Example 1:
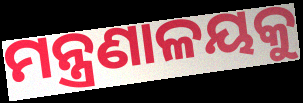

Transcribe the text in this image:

ମନ୍ତ୍ରଣାଳୟକୁ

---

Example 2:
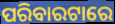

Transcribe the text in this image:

ପରିବାରଟାରେ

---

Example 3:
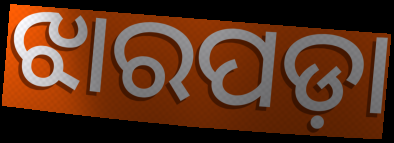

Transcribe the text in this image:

ଝାରପଡ଼ା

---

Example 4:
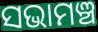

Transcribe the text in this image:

ସଭାମଞ୍ଚ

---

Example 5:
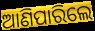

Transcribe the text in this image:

ଆଣିପାରିଲେ